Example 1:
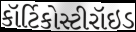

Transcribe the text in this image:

કૉર્ટિકોસ્ટીરૉઇડ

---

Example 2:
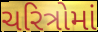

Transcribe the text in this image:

ચરિત્રોમાં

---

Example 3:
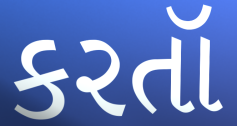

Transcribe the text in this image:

કરતૉ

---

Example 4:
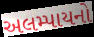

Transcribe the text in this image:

અલમ્પાયનો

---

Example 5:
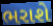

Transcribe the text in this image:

ભરાશે